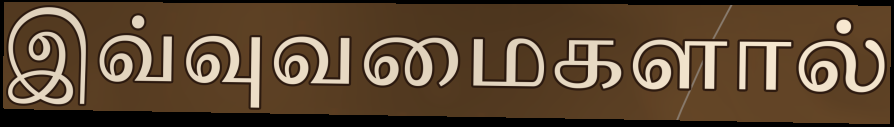
இவ்வுவமைகளால்